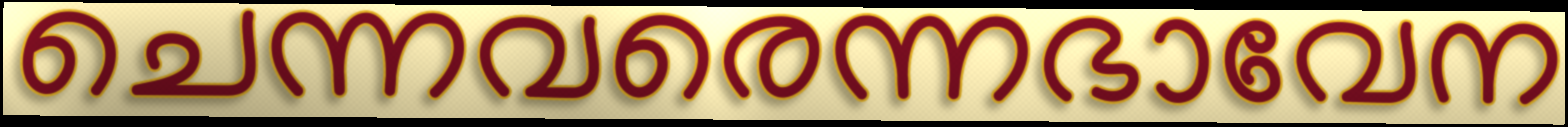
ചെന്നവരെന്നഭാവേന